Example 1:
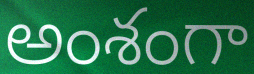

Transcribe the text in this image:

అంశంగా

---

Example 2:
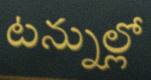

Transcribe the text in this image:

టన్నుల్లో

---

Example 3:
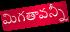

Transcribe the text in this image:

మిగతావన్నీ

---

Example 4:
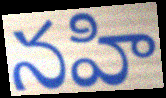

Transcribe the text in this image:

నహి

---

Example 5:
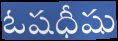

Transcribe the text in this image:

ఓషధీషు